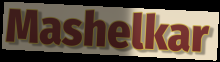
Mashelkar